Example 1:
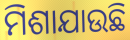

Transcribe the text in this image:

ମିଶାଯାଉଛି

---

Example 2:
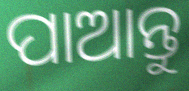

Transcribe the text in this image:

ପାଆନ୍ତୁ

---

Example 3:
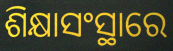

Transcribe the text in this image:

ଶିକ୍ଷାସଂସ୍ଥାରେ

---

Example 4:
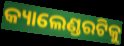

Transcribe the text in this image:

କ୍ୟାଲେଣ୍ଡରଟିକୁ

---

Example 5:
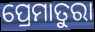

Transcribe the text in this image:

ପ୍ରେମାତୁରା